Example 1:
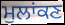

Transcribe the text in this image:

ਮੁਲਾਂਕਣ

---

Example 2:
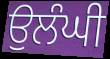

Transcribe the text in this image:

ਉਲੰਘੀ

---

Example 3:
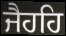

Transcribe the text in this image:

ਜੈਹਹਿ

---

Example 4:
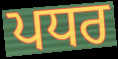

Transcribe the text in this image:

ਪਧਰ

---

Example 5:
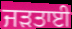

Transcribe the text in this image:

ਜੜਤਾਈ